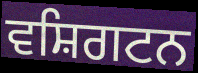
ਵਸ਼ਿਗਟਨ